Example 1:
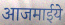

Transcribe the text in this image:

आजमाईये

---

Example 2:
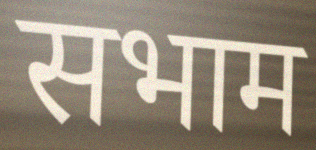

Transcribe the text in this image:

सभाम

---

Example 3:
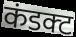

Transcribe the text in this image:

कंडक्‍ट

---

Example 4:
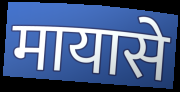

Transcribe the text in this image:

मायासे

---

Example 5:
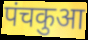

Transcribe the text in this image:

पंचकुआ